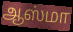
ஆஸ்மா